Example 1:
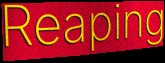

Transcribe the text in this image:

Reaping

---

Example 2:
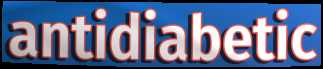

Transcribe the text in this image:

antidiabetic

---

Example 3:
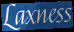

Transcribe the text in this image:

Laxness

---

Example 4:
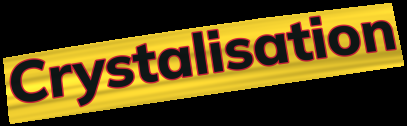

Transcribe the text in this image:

Crystalisation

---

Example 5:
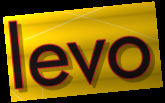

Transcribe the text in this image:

levo